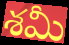
శమీ